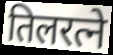
तिलरत्ने